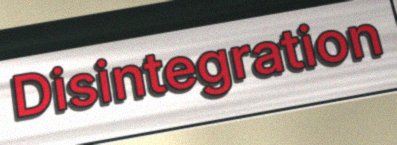
Disintegration